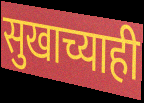
सुखाच्याही